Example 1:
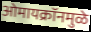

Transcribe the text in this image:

ओमायक्रॉनमुळे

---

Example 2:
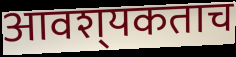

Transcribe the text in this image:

आवश्यकताच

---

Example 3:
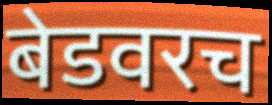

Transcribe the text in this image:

बेडवरच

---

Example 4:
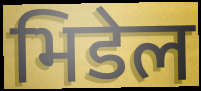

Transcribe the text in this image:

भिडेल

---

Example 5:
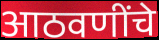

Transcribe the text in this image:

आठवणींचे